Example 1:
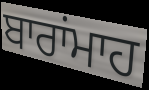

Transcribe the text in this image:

ਬਾਰਾਂਮਾਹ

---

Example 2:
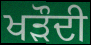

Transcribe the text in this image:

ਖੜੌਦੀ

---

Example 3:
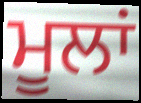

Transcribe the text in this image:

ਮੂਲਾਂ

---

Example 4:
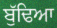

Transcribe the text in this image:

ਬੁੱਢਿਆ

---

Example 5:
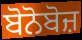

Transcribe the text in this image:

ਬੋਨੋਬੋਜ਼